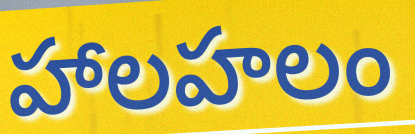
హాలహలం